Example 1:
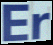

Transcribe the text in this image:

Er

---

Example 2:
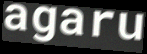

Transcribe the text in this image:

agaru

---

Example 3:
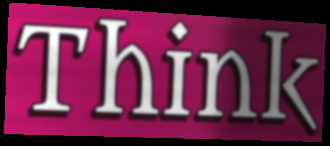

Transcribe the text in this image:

Think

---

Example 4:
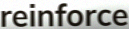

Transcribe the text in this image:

reinforce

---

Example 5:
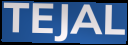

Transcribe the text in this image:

TEJAL